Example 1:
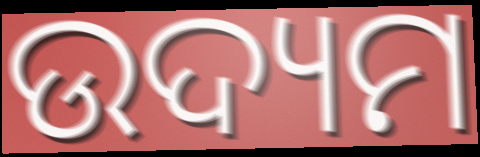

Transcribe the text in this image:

ଉଦ୍ୟମ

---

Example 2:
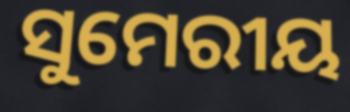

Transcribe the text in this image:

ସୁମେରୀୟ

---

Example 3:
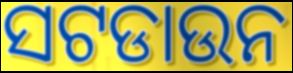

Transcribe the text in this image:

ସଟଡାଉନ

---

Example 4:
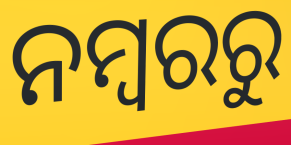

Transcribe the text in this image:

ନମ୍ବରରୁ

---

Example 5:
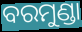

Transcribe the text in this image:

ବରମୁଣ୍ଡା